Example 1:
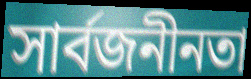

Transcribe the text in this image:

সাৰ্বজনীনতা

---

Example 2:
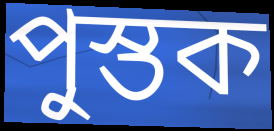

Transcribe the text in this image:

পুস্তক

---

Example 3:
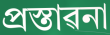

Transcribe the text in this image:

প্ৰস্তাৱনা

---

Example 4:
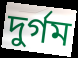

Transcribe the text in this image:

দুৰ্গম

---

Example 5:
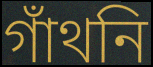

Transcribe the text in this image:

গাঁথনি